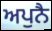
ਅਪੁਨੈ